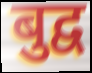
बुद्व